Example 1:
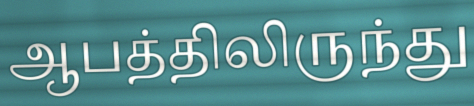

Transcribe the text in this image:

ஆபத்திலிருந்து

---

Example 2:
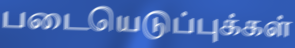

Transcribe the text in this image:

படையெடுப்புக்கள்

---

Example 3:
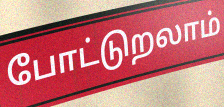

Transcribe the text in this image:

போட்டுறலாம்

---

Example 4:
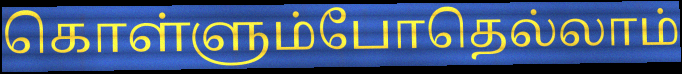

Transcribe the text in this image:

கொள்ளும்போதெல்லாம்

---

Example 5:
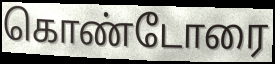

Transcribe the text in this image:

கொண்டோரை